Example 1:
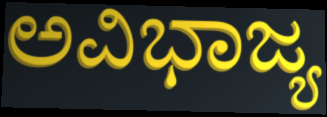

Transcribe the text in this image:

ಅವಿಭಾಜ್ಯ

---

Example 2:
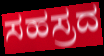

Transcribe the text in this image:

ಸಹಸ್ರದ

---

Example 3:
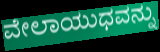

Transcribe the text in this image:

ವೇಲಾಯುಧವನ್ನು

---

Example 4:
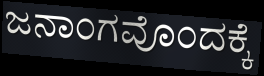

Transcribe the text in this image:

ಜನಾಂಗವೊಂದಕ್ಕೆ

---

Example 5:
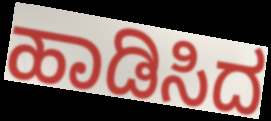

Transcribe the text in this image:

ಹಾಡಿಸಿದ